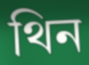
থিন